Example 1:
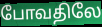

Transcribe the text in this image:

போவதிலே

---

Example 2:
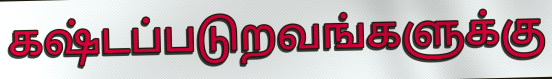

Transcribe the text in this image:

கஷ்டப்படுறவங்களுக்கு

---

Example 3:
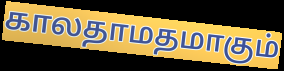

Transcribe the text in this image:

காலதாமதமாகும்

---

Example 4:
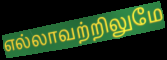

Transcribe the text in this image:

எல்லாவற்றிலுமே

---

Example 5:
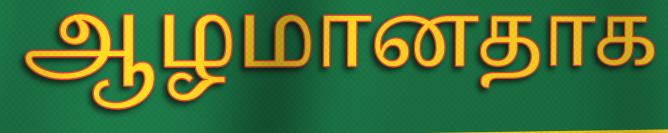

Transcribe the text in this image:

ஆழமானதாக